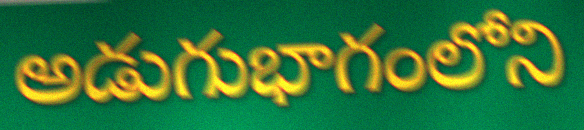
అడుగుభాగంలోని